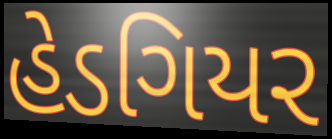
હેડગિયર